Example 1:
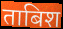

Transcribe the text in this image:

ताबिश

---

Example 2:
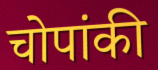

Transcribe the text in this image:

चोपांकी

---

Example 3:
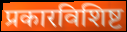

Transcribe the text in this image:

प्रकारविशिष्ट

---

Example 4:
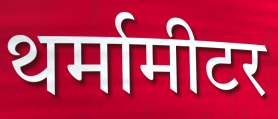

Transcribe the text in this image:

थर्मामीटर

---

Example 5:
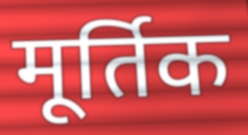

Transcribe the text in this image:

मूर्तिक